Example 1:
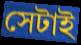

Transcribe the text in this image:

সেটাই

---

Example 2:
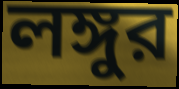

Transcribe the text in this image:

লঙ্গুর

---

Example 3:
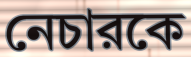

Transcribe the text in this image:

নেচারকে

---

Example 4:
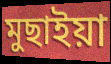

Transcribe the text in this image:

মুছাইয়া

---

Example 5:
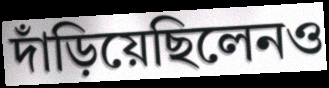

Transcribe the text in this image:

দাঁড়িয়েছিলেনও